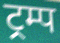
ट्रम्प